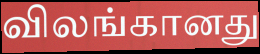
விலங்கானது